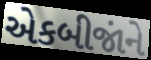
એકબીજાંને